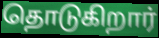
தொடுகிறார்